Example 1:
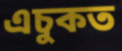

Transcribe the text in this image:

এচুকত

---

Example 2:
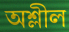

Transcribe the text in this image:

অশ্লীল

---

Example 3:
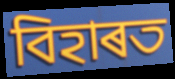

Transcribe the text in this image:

বিহাৰত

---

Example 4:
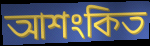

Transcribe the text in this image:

আশংকিত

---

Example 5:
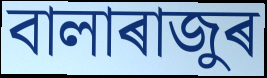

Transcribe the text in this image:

বালাৰাজুৰ